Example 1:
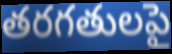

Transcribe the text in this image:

తరగతులపై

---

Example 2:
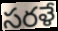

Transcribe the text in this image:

సరళే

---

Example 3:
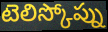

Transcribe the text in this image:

టెలిస్కోప్ను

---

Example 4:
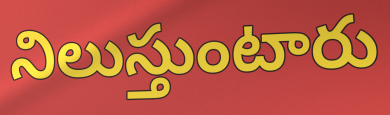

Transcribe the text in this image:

నిలుస్తుంటారు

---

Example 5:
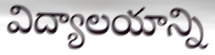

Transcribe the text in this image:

విద్యాలయాన్ని